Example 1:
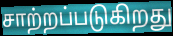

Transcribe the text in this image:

சாற்றப்படுகிறது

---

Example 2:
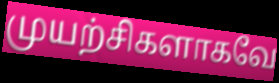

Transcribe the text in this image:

முயற்சிகளாகவே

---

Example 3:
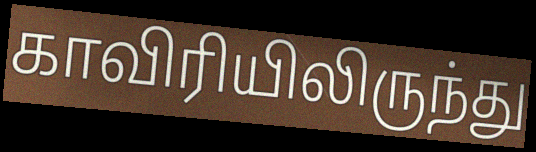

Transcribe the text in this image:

காவிரியிலிருந்து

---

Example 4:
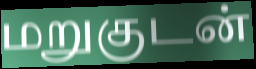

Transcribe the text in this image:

மறுகுடன்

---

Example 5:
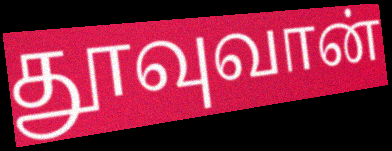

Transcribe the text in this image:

தூவுவான்